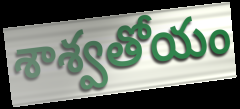
శాశ్వతోయం